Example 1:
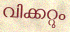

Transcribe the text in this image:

വിക്കറ്റും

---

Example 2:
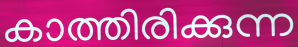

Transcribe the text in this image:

കാത്തിരിക്കുന്ന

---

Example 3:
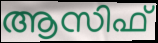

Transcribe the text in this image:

ആസിഫ്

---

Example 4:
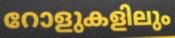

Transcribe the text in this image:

റോളുകളിലും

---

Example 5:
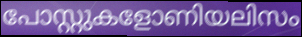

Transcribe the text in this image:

പോസ്റ്റുകളോണിയലിസം